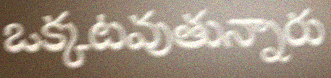
ఒక్కటవుతున్నారు